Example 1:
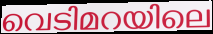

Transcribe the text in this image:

വെടിമറയിലെ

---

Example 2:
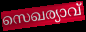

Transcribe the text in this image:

സെഖര്യാവ്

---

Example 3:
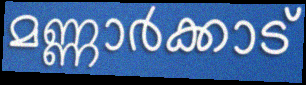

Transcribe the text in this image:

മണ്ണാർക്കാട്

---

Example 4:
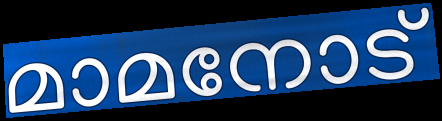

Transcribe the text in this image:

മാമനോട്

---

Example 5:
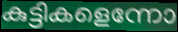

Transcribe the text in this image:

കുട്ടികളെന്നോ